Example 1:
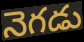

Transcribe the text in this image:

నెగడు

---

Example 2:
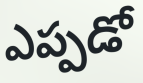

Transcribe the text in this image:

ఎప్పడో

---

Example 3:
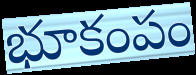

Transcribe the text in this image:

భూకంపం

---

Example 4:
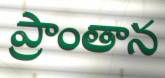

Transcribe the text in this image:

ప్రాంతాన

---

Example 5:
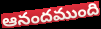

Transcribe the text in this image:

ఆనందముంది